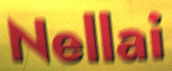
Nellai